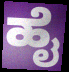
ಹೈ